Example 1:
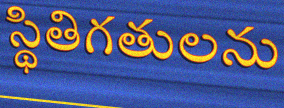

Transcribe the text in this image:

స్థితిగతులను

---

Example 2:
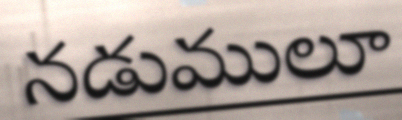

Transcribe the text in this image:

నడుములూ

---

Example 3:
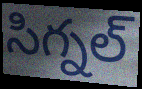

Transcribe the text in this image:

సిగ్నల్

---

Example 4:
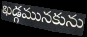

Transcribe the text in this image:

ఖడ్గమునకును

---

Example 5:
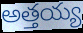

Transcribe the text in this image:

అత్తయ్య